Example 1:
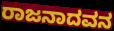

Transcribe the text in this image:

ರಾಜನಾದವನ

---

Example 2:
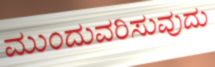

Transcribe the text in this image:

ಮುಂದುವರಿಸುವುದು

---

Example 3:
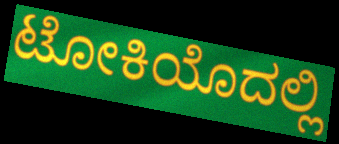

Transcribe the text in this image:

ಟೋಕಿಯೊದಲ್ಲಿ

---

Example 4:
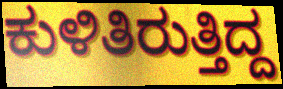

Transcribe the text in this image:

ಕುಳಿತಿರುತ್ತಿದ್ದ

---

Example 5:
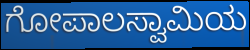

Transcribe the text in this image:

ಗೋಪಾಲಸ್ವಾಮಿಯ